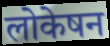
लोकेषन